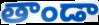
తాండా